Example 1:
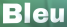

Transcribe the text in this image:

Bleu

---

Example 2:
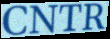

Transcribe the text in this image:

CNTR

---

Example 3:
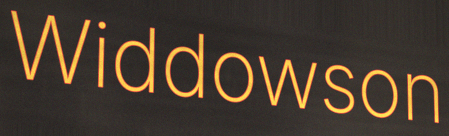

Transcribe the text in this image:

Widdowson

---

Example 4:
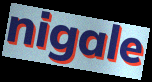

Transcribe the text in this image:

nigale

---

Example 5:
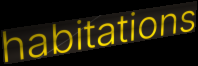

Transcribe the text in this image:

habitations